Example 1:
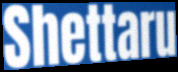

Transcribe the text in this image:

Shettaru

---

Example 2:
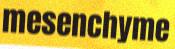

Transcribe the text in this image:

mesenchyme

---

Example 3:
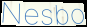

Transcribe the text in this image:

Nesbo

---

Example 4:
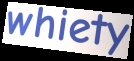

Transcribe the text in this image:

whiety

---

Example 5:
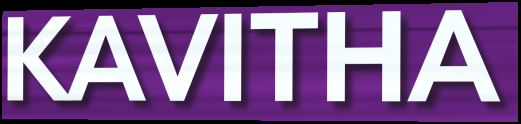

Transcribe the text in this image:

KAVITHA